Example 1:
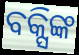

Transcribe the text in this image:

ବକ୍ସିଙ୍କ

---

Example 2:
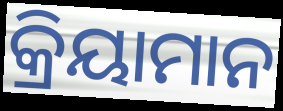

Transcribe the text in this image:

କ୍ରିୟାମାନ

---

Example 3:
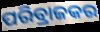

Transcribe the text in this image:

ପରିବ୍ରାଜକର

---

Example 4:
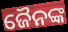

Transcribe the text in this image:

ଜୈନଙ୍କ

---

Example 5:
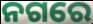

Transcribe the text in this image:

ନଗରେ